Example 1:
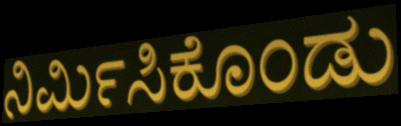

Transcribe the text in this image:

ನಿರ್ಮಿಸಿಕೊಂಡು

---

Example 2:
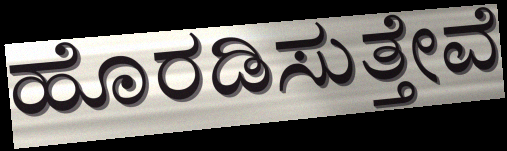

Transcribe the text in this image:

ಹೊರಡಿಸುತ್ತೇವೆ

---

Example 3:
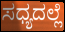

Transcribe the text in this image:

ಸಧ್ಯದಲ್ಲೆ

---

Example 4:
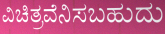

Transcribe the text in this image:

ವಿಚಿತ್ರವೆನಿಸಬಹುದು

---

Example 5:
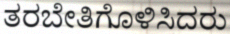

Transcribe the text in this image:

ತರಬೇತಿಗೊಳಿಸಿದರು